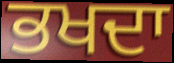
ਭਖਦਾ